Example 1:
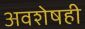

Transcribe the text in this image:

अवशेषही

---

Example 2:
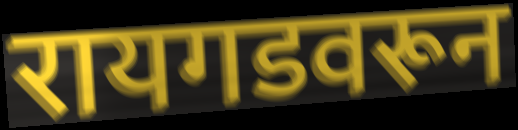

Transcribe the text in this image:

रायगडवरून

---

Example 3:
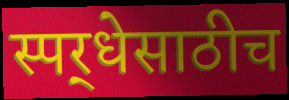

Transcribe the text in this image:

स्पर्धेसाठीच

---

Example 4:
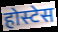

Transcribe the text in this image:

होस्टेस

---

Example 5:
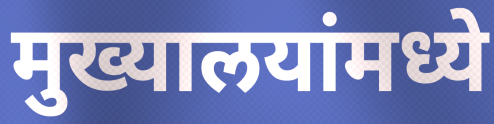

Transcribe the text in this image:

मुख्यालयांमध्ये